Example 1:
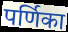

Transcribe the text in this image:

पर्णिका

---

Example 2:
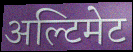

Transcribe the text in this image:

अल्टिमेट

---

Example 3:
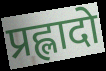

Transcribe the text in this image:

प्रह्लादो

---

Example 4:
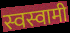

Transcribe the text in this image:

स्वस्वामी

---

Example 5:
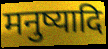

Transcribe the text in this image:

मनुष्यादि